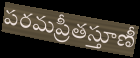
పరమప్రీతస్తూణీ